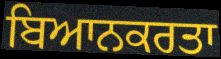
ਬਿਆਨਕਰਤਾ